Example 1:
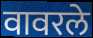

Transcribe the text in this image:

वावरले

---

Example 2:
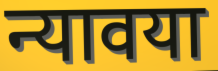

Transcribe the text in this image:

न्यावया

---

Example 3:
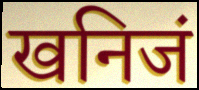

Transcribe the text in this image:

खनिजं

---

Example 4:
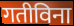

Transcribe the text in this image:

गतीविना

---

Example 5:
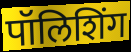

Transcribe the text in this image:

पॉलिशिंग